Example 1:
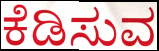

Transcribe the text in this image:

ಕೆಡಿಸುವ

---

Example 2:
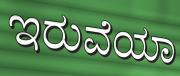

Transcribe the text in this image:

ಇರುವೆಯಾ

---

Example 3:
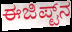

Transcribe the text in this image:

ಈಜಿಪ್ಟ್‌ನ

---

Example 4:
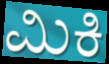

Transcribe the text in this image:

ಮಿಕಿ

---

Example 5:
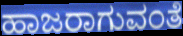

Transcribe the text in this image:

ಹಾಜರಾಗುವಂತೆ